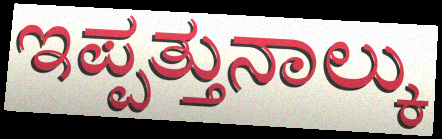
ಇಪ್ಪತ್ತುನಾಲ್ಕು